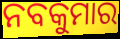
ନବକୁମାର